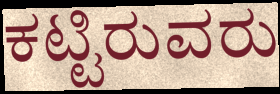
ಕಟ್ಟಿರುವರು